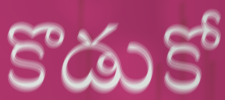
కొడుకో